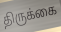
திருக்கை